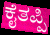
ಕೈತಪ್ಪಿ